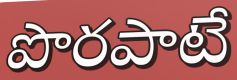
పొరపాటే